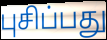
புசிப்பது